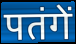
पतंगें